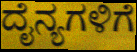
ದೈನ್ಯಗಳಿಗೆ